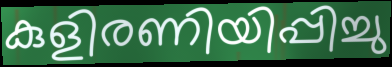
കുളിരണിയിപ്പിച്ചു